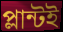
প্লান্টই